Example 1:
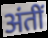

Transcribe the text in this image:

अंतीं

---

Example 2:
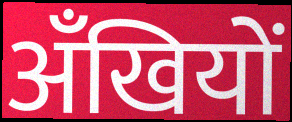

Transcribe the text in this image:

अँखियों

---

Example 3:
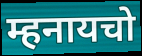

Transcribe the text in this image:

म्हनायचो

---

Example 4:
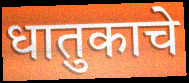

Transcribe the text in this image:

धातुकाचे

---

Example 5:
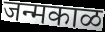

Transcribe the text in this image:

जन्मकाळ